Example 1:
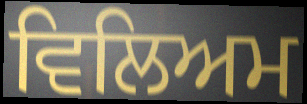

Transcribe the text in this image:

ਵਿਲਿਅਮ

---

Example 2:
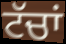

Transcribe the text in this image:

ਟੱਚਾਂ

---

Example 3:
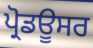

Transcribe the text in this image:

ਪ੍ਰੋਡਊਸਰ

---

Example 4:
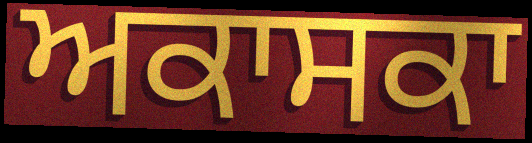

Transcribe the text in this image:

ਅਕਾਸਕਾ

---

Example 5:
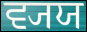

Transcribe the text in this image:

ਵ੍ਯਯ